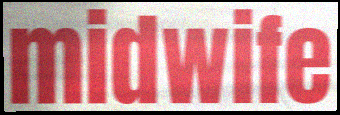
midwife